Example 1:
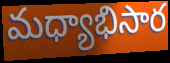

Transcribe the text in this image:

మధ్యాభిసార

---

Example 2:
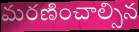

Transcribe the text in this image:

మరణించాల్సిన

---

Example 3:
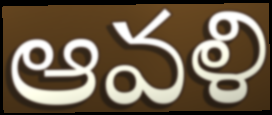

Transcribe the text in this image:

ఆవళి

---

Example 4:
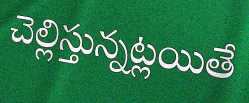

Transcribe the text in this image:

చెల్లిస్తున్నట్లయితే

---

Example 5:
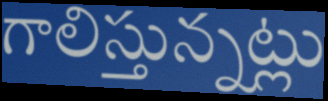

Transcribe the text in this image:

గాలిస్తున్నట్లు